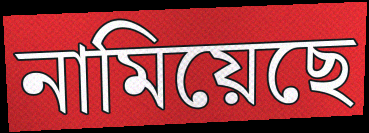
নামিয়েছে